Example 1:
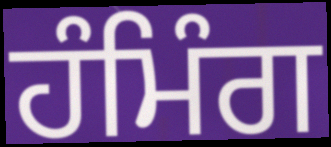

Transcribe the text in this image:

ਹੰਮਿੰਗ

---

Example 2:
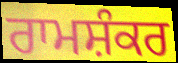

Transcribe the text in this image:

ਰਾਮਸ਼ੰਕਰ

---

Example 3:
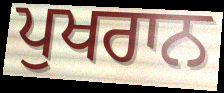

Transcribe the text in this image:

ਪੁਖਰਾਨ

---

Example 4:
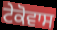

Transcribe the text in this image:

ਟੇਕੋਵਾਸ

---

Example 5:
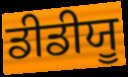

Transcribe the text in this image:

ਡੀਡੀਯੂ